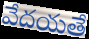
వేదయతే